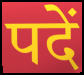
पदें